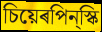
চিয়েৰপিন্‌স্কি